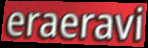
eraeravi